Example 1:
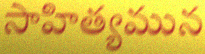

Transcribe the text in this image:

సాహిత్యమున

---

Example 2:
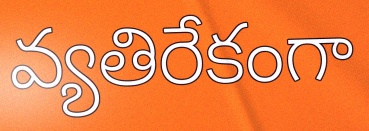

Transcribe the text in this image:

వ్యతిరేకంగా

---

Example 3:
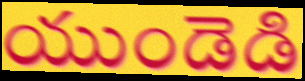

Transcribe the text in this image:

యుండెడి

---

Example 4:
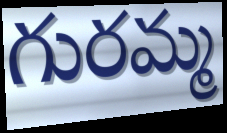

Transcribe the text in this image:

గురమ్మ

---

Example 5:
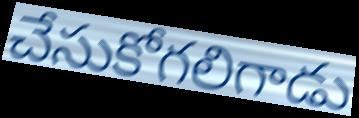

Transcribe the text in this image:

చేసుకోగలిగాడు